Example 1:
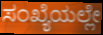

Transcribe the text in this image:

ಸಂಖ್ಯೆಯಲ್ಲೇ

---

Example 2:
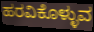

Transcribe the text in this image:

ಹರವಿಕೊಳ್ಳುವ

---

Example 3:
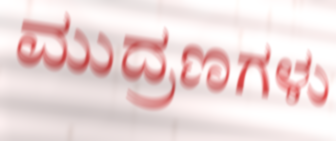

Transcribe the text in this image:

ಮುದ್ರಣಗಳು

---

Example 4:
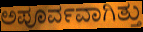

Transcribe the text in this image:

ಅಪೂರ್ವವಾಗಿತ್ತು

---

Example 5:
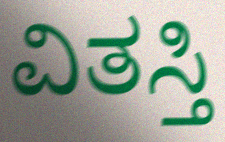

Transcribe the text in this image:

ವಿತಸ್ತಿ